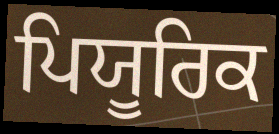
ਪਿਯੂਰਿਕ